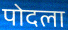
पोदला